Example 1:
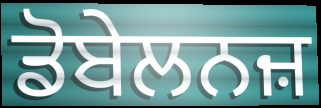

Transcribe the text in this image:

ਡੋਬੇਲਨਜ਼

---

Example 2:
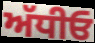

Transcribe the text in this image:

ਅੱਧੀਓ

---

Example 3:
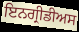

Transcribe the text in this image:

ਇਨਗ੍ਰੀਡੀਅਸ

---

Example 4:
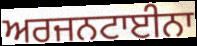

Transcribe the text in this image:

ਅਰਜਨਟਾਈਨਾ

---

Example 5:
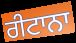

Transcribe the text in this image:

ਰੀਟਾਨਾ